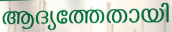
ആദ്യത്തേതായി